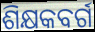
ଶିକ୍ଷକବର୍ଗ